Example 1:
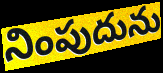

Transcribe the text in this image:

నింపుదును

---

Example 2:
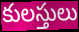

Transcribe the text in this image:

కులస్తులు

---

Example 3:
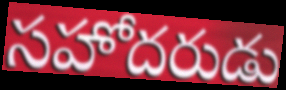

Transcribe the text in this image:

సహోదరుడు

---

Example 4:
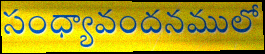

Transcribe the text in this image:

సంధ్యావందనములో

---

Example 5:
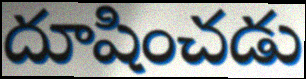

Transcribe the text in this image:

దూషించడు